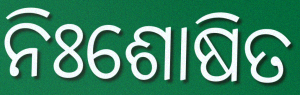
ନିଃଶୋଷିତ